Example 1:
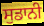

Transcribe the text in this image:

ਸੁਡਾਨੀ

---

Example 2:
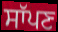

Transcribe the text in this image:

ਸਾੱਪਣ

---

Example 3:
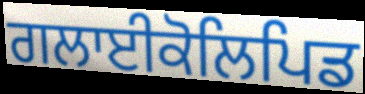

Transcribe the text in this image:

ਗਲਾਈਕੋਲਿਪਿਡ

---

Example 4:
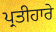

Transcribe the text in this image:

ਪ੍ਰਤੀਹਾਰੇ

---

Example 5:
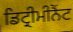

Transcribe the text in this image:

ਡਿਟ੍ਰੀਮੀਨੈਂਟ